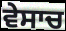
ਵੇਸਾਚ